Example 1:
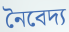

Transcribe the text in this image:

নৈবেদ্য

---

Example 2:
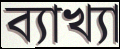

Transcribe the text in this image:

ব্যাখ্যা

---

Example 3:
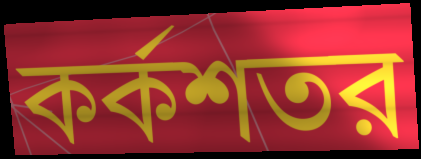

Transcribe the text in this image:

কর্কশতর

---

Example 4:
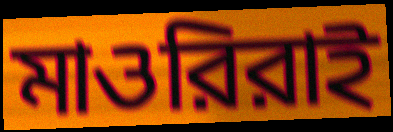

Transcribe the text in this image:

মাওরিরাই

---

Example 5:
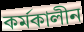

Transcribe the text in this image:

কর্মকালীন